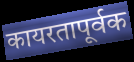
कायरतापूर्वक